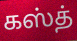
கஸ்த்